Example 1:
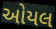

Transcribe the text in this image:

ઓયલ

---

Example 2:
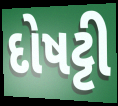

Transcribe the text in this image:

દોષટ્ટી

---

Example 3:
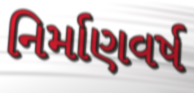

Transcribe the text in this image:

નિર્માણવર્ષ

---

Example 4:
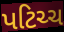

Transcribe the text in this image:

પટિચ્ચ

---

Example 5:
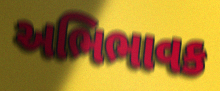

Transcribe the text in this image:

અભિભાવક